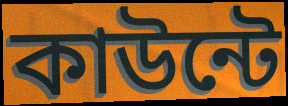
কাউন্টে